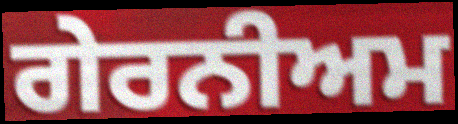
ਗੇਰਨੀਅਮ